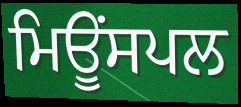
ਮਿਊਂਸਪਲ